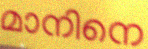
മാനിനെ